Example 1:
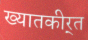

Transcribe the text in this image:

ख्यातकीर्त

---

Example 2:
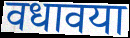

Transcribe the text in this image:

वधावया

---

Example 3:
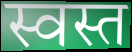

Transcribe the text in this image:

स्वस्त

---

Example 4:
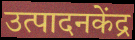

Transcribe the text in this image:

उत्पादनकेंद्र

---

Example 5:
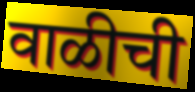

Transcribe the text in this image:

वाळीची